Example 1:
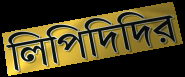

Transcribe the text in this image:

লিপিদিদির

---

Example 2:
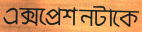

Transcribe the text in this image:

এক্সপ্রেশনটাকে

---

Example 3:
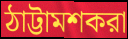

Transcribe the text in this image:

ঠাট্টামশকরা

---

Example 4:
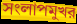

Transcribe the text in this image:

সংলাপমুখর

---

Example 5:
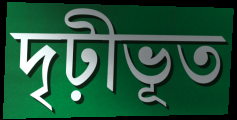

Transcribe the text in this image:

দৃঢ়ীভূত